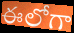
ఈలోగా